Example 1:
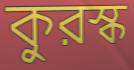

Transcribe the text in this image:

কুরস্ক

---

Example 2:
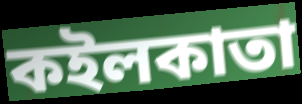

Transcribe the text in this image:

কইলকাতা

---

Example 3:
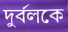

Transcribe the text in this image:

দুর্বলকে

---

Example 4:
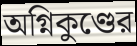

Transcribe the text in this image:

অগ্নিকুণ্ডের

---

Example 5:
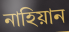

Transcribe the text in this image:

নাহিয়ান